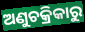
ଅଣୁଚକ୍ରିକାରୁ